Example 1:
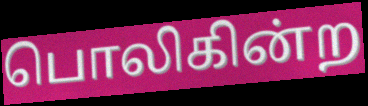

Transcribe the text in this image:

பொலிகின்ற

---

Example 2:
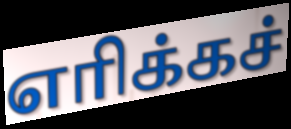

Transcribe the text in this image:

எரிக்கச்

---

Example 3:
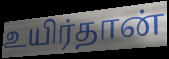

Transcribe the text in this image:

உயிர்தான்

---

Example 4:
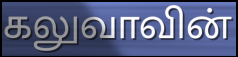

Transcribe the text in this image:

கலுவாவின்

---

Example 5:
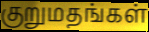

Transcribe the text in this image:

குறுமதங்கள்